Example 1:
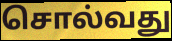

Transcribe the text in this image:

சொல்வது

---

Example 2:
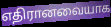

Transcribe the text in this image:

எதிரானவையாக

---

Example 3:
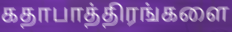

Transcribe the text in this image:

கதாபாத்திரங்களை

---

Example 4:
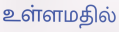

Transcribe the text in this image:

உள்ளமதில்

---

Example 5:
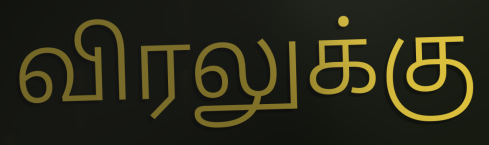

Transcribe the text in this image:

விரலுக்கு